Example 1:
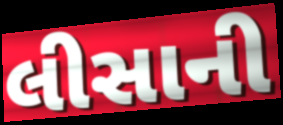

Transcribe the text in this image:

લીસાની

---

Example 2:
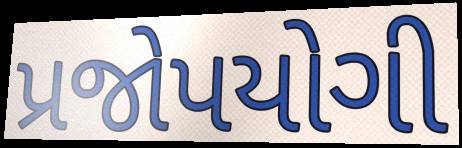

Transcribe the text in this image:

પ્રજોપયોગી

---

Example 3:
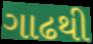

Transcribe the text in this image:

ગાઢથી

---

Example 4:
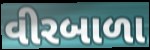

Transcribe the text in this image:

વીરબાળા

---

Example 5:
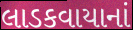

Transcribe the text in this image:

લાડકવાયાનાં